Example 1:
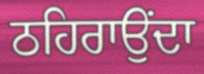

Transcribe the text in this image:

ਠਹਿਰਾਉਂਦਾ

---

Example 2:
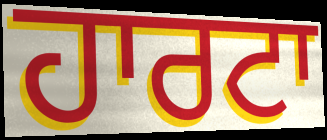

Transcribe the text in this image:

ਹਾਰਟਾ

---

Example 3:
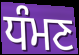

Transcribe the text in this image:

ਧੰਮਣ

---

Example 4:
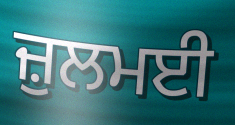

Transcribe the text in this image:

ਜ਼ੁਲਮਈ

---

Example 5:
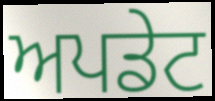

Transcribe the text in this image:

ਅਪਡੇਟ